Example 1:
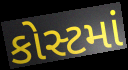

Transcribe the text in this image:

કોસ્ટમાં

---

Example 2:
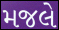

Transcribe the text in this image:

મજલે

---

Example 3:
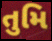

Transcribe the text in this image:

તુમિ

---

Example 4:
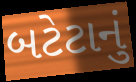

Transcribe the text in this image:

બટેટાનું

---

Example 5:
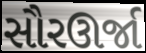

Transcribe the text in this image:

સૌરઊર્જા